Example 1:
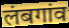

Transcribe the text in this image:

लंबगांव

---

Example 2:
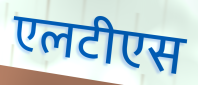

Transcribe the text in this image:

एलटीएस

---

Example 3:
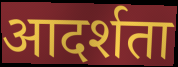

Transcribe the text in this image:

आदर्शता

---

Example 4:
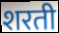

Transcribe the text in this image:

शरती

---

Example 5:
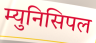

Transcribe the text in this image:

म्युनिसिपल